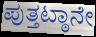
ಪುತ್ತಟ್ಠಾನೇ